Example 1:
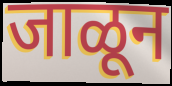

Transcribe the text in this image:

जाळून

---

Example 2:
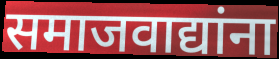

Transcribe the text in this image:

समाजवाद्यांना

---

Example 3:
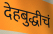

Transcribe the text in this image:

देहबुद्धीचं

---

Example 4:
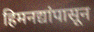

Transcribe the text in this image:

हिमनद्यांपासून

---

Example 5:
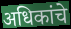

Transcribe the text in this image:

अधिकांचे